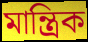
মান্ত্রিক